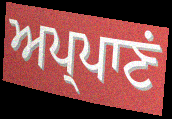
ਅਪ੍ਪਾਣਂ